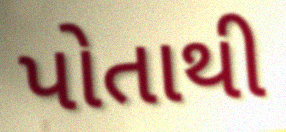
પોતાથી